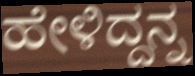
ಹೇಳಿದ್ದನ್ನ